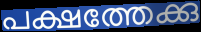
പക്ഷത്തേക്കു